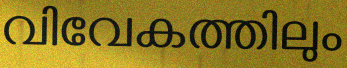
വിവേകത്തിലും